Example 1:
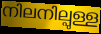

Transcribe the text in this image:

നിലനില്പുള്ള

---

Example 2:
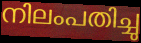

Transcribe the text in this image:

നിലംപതിച്ചു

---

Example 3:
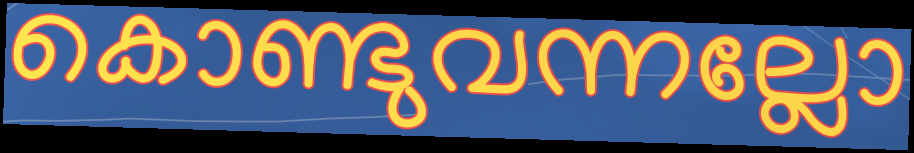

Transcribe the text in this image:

കൊണ്ടുവന്നല്ലോ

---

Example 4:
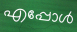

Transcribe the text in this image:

എപ്പോൾ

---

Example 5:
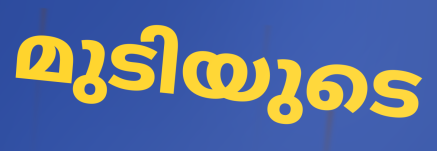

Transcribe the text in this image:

മുടിയുടെ